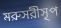
মরুসরীসৃপ